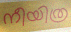
നീയിത്ര